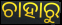
ଚାହାରୁ